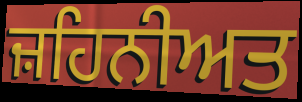
ਜ਼ਹਿਨੀਅਤ